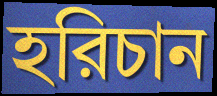
হরিচান